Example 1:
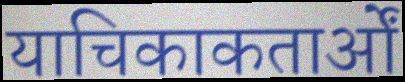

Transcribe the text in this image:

याचिकाकतार्ओं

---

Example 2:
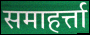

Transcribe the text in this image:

समाहर्त्ता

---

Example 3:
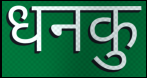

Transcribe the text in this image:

धनकु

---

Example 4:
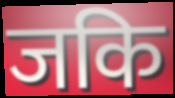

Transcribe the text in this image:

जकि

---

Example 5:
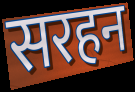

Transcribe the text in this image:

सरहन